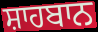
ਸ਼ਾਹਬਾਨ